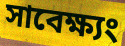
সাবেক্ষ্যং